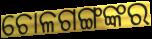
ଚୋଳଗଙ୍ଗଙ୍କର